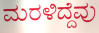
ಮರಳಿದ್ದೆವು